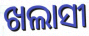
ଖଲାସୀ